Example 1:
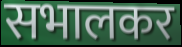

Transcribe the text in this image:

सभालकर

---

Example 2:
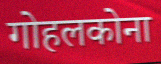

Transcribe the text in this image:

गोहलकोना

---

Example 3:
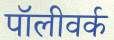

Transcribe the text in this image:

पॉलीवर्क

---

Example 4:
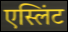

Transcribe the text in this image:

एस्लिंट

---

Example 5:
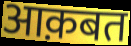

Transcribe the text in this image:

आक़बत